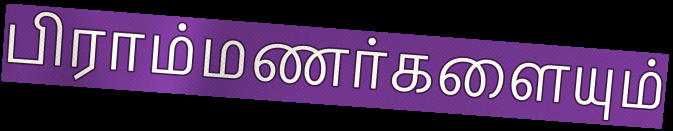
பிராம்மணர்களையும்